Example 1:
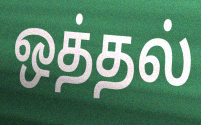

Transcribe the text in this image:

ஒத்தல்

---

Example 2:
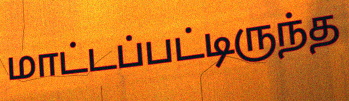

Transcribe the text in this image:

மாட்டப்பட்டிருந்த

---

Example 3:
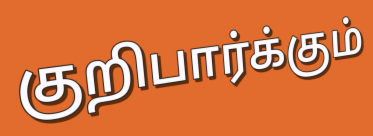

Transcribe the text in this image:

குறிபார்க்கும்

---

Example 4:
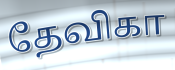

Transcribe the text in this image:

தேவிகா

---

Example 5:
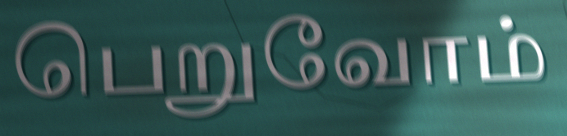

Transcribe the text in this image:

பெறுவோம்